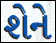
શેને